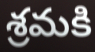
శ్రమకి